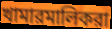
খামারমালিকরা